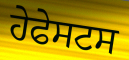
ਹੇਫੇਸਟਸ